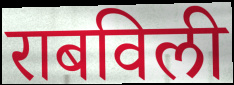
राबविली